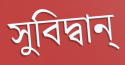
সুবিদ্বান্